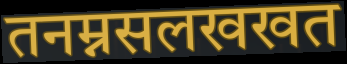
तनम्नसलखखत